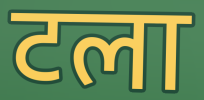
टला